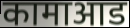
कामाआड